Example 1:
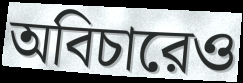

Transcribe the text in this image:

অবিচারেও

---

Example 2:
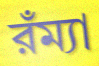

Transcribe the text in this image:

রঁম্যা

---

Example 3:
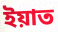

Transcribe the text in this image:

ইয়াত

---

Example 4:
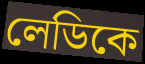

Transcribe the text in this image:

লেডিকে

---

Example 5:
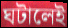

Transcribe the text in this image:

ঘটালেই